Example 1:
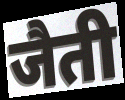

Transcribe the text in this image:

जैती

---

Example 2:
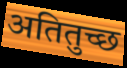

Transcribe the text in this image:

अतितुच्छ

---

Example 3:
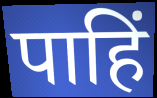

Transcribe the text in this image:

पाहिं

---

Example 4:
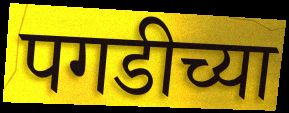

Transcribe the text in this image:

पगडीच्या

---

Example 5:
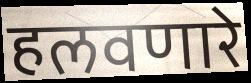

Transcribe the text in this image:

हलवणारे